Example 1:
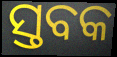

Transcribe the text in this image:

ସ୍ତବକ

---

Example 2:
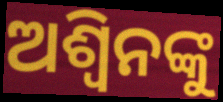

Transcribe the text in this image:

ଅଶ୍ବିନଙ୍କୁ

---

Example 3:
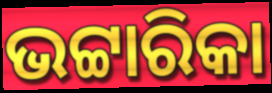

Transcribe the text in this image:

ଭଟ୍ଟାରିକା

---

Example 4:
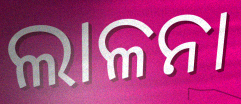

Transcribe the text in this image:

ଲାଳନା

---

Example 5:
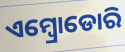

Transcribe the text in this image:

ଏମ୍ବ୍ରୋଡୋରି